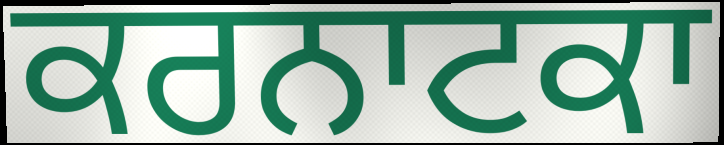
ਕਰਨਾਟਕਾ